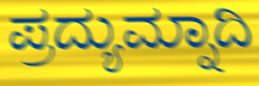
ಪ್ರದ್ಯುಮ್ನಾದಿ